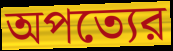
অপত্যের